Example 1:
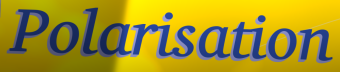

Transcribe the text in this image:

Polarisation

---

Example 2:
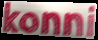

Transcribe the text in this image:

konni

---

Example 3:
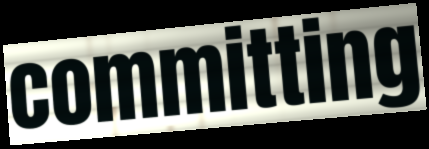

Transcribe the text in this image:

committing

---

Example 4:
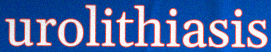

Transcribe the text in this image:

urolithiasis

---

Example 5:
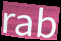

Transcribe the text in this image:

rab